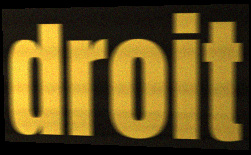
droit